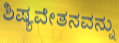
ಶಿಷ್ಯವೇತನವನ್ನು